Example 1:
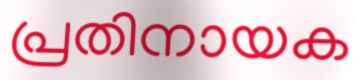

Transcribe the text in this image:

പ്രതിനായക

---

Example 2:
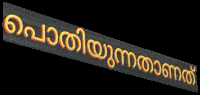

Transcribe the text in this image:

പൊതിയുന്നതാണത്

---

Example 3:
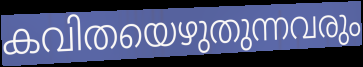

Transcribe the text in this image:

കവിതയെഴുതുന്നവരും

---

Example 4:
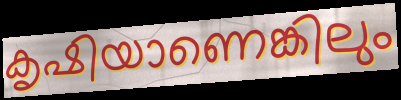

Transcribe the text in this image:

കൃഷിയാണെങ്കിലും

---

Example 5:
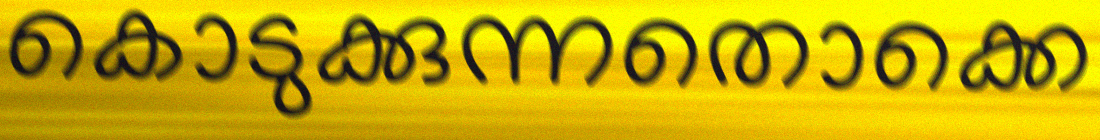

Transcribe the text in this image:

കൊടുക്കുന്നതൊക്കെ